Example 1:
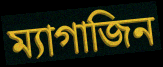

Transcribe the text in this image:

ম্যাগাজিন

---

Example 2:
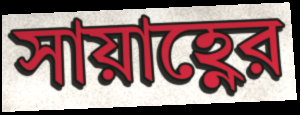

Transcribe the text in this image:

সায়াহ্ণের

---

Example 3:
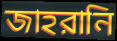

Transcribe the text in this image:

জাহরানি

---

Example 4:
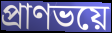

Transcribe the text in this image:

প্রাণভয়ে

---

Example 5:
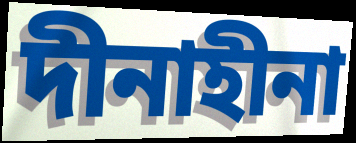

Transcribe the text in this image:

দীনাহীনা